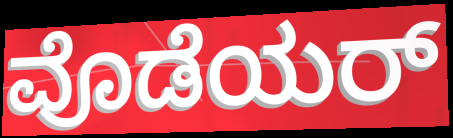
ವೊಡೆಯರ್